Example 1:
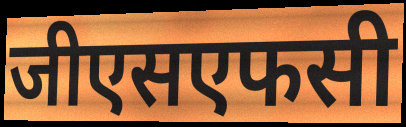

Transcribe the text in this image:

जीएसएफसी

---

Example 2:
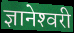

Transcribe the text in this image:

ज्ञानेश्‍वरी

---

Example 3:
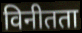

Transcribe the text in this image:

विनीतता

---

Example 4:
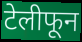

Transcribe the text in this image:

टेलीफून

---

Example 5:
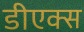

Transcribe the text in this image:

डीएक्स